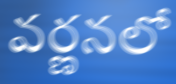
వర్ణనలో